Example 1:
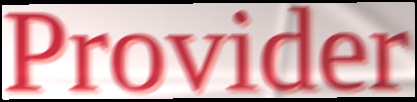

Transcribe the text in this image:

Provider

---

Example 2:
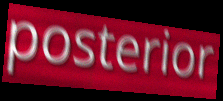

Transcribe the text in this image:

posterior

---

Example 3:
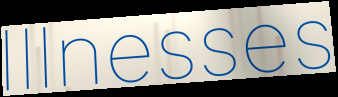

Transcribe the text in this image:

Illnesses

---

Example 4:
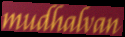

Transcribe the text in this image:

mudhalvan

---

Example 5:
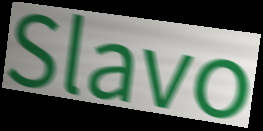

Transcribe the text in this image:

Slavo